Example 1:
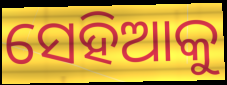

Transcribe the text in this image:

ସେହିଆକୁ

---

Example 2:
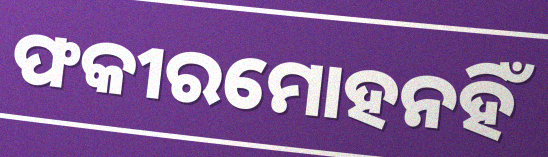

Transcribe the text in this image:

ଫକୀରମୋହନହିଁ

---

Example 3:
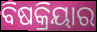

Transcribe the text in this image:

ବିଷକ୍ରିୟାର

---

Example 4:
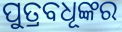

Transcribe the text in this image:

ପୁତ୍ରବଧୂଙ୍କର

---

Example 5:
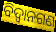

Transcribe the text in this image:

ବିଦ୍ଵାନଗଣ